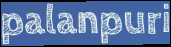
palanpuri